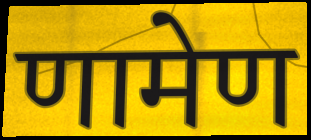
णामेण